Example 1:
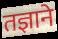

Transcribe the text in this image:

तज्ञाने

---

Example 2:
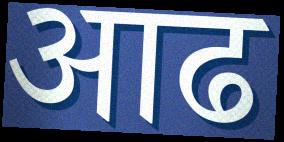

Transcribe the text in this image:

आढ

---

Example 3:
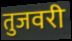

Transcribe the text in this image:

तुजवरी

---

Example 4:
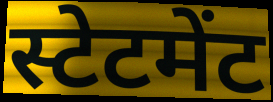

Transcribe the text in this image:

स्टेटमेंट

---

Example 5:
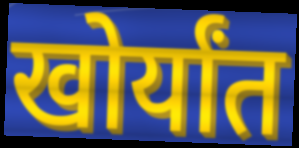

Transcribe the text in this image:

खोर्यांत